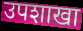
उपशाखा